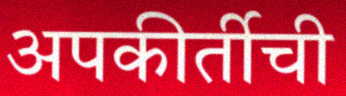
अपकीर्तीची